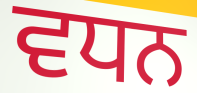
ਵਧਨ